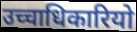
उच्चाधिकारियो